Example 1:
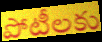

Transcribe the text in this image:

పోటీలకు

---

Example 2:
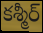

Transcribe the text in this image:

కశ్మీర్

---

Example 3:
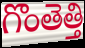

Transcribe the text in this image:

గొంతెత్తి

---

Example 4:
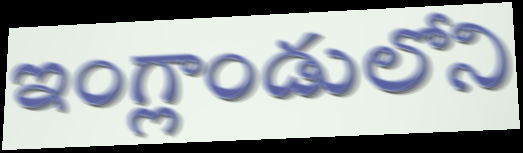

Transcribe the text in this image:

ఇంగ్లాండులోని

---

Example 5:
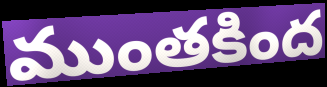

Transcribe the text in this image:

ముంతకింద